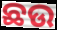
ଛଉ